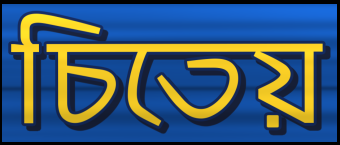
চিতেয়